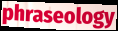
phraseology